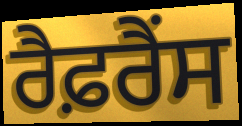
ਰੈਫ਼ਰੈਂਸ